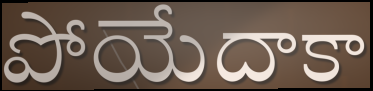
పోయేదాకా